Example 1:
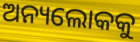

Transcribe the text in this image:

ଅନ୍ୟଲୋକକୁ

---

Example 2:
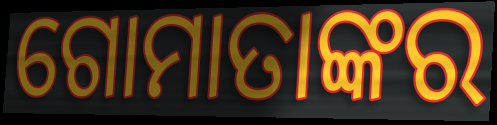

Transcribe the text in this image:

ଗୋମାତାଙ୍କର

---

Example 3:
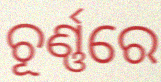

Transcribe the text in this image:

ଚୂର୍ଣ୍ଣରେ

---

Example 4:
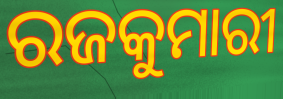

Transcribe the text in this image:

ରଜକୁମାରୀ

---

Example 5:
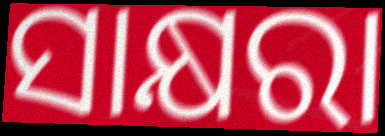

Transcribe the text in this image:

ସାକ୍ଷରା